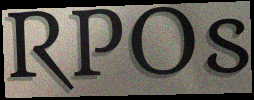
RPOs